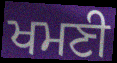
ਖਮਣੀ